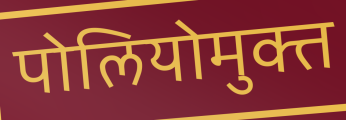
पोलियोमुक्त